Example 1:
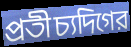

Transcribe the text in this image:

প্রতীচ্যদিগের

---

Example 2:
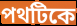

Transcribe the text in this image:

পথটিকে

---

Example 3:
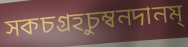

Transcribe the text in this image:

সকচগ্রহচুম্বনদানম্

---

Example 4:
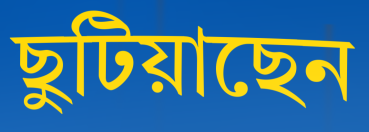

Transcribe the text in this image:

ছুটিয়াছেন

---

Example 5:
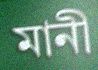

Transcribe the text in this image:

মানী